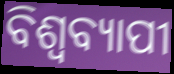
ବିଶ୍ଵବ୍ୟାପୀ